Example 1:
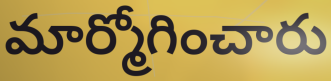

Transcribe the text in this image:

మార్మోగించారు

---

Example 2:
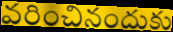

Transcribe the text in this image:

వరించినందుకు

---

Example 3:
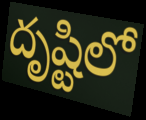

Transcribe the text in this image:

దృష్టిలో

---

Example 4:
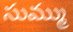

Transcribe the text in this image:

సుమ్ము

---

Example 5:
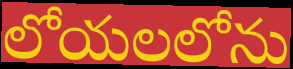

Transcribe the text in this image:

లోయలలోను